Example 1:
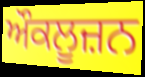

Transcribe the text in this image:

ਔਕਲੂਜ਼ਨ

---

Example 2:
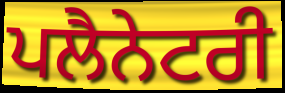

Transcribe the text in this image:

ਪਲੈਨੇਟਰੀ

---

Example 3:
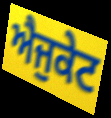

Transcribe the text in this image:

ਐਜੁਕੇਟ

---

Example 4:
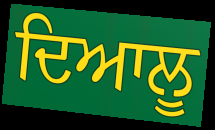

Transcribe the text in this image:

ਦਿਆਲੂ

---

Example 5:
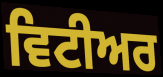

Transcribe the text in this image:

ਵਿਟੀਅਰ